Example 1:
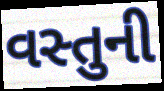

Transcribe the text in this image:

વસ્તુની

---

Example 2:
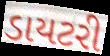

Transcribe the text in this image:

ડાયટરી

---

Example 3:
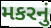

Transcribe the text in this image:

મકરનું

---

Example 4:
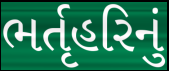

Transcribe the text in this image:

ભર્તૃહરિનું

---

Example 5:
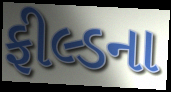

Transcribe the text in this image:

ફીલ્ડના